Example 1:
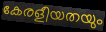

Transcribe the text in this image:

കേരളീയതയും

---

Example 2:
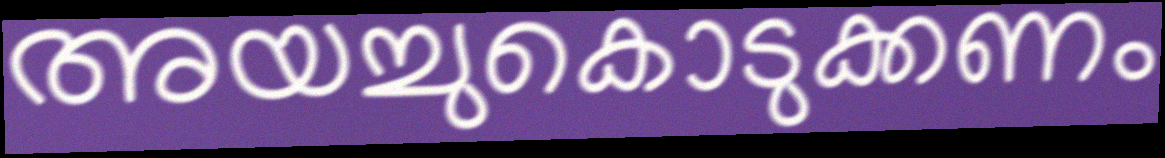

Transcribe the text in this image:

അയച്ചുകൊടുക്കണം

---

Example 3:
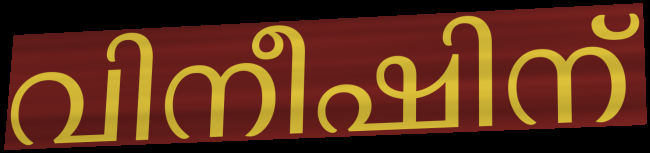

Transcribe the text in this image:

വിനീഷിന്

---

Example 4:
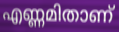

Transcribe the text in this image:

എണ്ണമിതാണ്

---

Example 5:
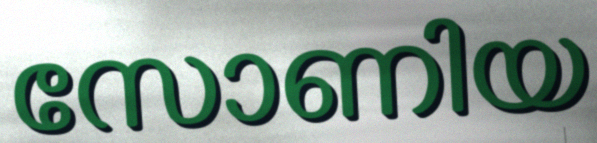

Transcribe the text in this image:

സോണിയ